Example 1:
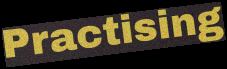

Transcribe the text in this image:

Practising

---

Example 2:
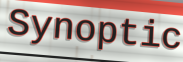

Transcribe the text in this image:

Synoptic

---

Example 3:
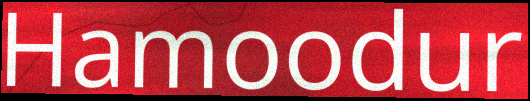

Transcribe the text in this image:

Hamoodur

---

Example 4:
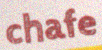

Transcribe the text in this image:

chafe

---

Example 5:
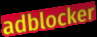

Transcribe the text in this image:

adblocker